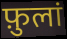
फ़ुलां